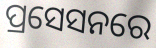
ପ୍ରସେସନରେ